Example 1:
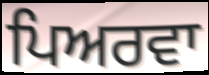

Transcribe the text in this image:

ਪਿਅਰਵਾ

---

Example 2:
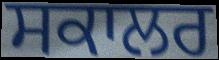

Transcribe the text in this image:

ਸਕਾਲਰ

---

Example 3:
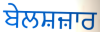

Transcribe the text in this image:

ਬੇਲਸ਼ਜ਼ਾਰ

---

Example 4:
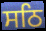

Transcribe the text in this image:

ਸਠਿ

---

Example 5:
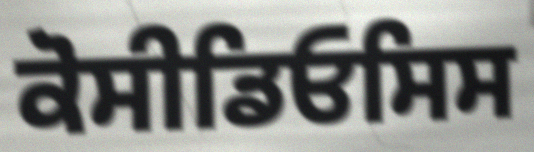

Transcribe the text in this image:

ਕੋਸੀਡਿਓਸਿਸ